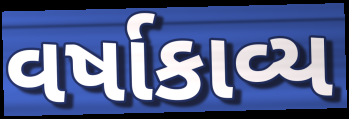
વર્ષાકાવ્ય